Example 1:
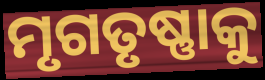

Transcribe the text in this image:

ମୃଗତୃଷ୍ଣାକୁ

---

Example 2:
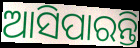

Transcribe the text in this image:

ଆସିପାରନ୍ତି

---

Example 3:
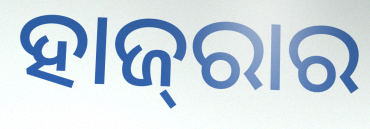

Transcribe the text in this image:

ହାଜ୍‌ରାର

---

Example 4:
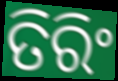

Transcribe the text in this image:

ତିରିଂ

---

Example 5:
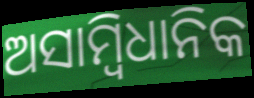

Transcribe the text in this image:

ଅସାମ୍ୱିଧାନିକ